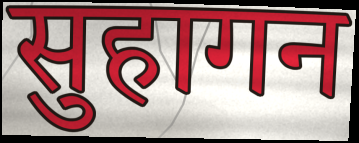
सुहागन